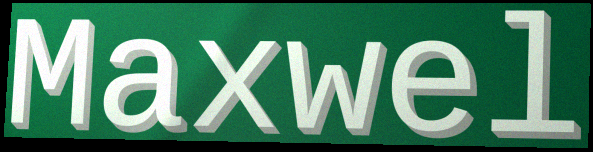
Maxwel